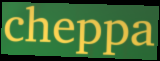
cheppa